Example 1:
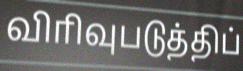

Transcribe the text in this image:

விரிவுபடுத்திப்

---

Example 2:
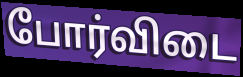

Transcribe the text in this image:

போர்விடை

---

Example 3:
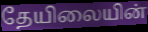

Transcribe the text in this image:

தேயிலையின்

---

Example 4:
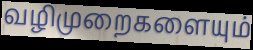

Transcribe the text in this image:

வழிமுறைகளையும்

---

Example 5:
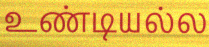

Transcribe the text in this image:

உண்டியல்ல